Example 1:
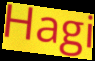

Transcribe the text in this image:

Hagi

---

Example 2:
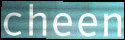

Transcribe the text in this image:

cheen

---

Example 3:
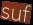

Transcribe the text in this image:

suf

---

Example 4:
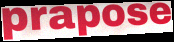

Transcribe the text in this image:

prapose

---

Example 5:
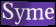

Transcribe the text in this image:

Syme